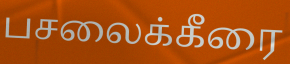
பசலைக்கீரை